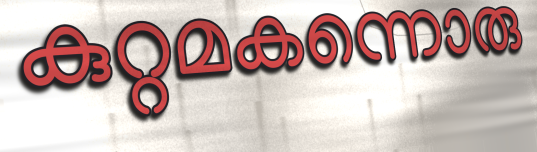
കുറ്റമകന്നൊരു